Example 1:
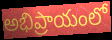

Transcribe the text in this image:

అభిప్రాయంలో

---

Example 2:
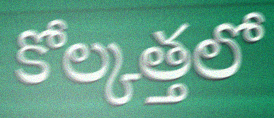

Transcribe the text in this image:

కోల్కత్తలో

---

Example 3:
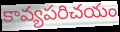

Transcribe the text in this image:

కావ్యపరిచయం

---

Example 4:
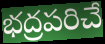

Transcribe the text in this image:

భద్రపరిచే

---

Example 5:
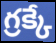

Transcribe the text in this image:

గ్రక్కే